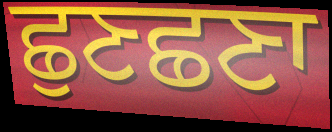
ਛੁਣਛਣਾ